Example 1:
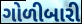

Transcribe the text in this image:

ગોળીબારી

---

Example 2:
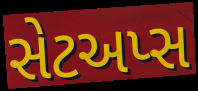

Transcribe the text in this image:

સેટઅપ્સ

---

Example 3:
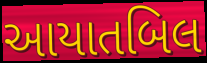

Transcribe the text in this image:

આયાતબિલ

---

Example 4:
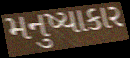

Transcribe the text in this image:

મનુષ્યાકાર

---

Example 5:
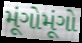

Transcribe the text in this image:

મૂંગોમૂંગો